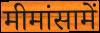
मीमांसामें